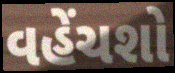
વહેંચશો